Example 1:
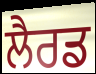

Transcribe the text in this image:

ਲੈਰਡ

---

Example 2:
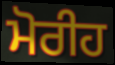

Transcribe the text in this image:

ਮੋਰੀਹ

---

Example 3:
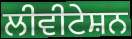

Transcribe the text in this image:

ਲੀਵੀਟੇਸ਼ਨ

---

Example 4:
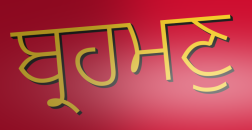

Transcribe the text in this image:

ਬ੍ਰਹਮਣੁ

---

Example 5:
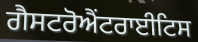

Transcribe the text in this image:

ਗੈਸਟਰੋਐਂਟਰਾਈਟਿਸ